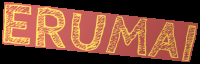
ERUMAI